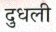
दुधली